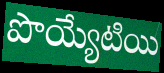
పొయ్యేటియి